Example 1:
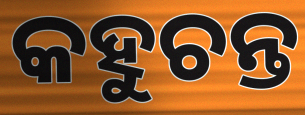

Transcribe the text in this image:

କହୁଚନ୍ତ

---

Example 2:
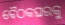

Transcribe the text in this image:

ବୈଠକଘରକୁ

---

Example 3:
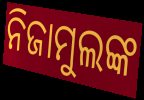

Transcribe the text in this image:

ନିଜାମୁଲଙ୍କ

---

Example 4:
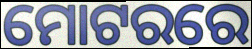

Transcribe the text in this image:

ମୋଟରରେ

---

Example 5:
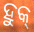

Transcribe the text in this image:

ହୁକ୍